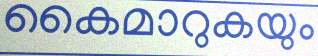
കൈമാറുകയും